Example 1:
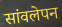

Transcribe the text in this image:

सांवलेपन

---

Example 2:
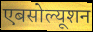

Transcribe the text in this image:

एबसोल्यूशन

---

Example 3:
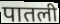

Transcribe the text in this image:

पातली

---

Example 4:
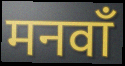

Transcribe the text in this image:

मनवाँ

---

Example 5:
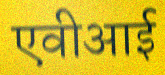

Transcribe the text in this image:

एवीआई